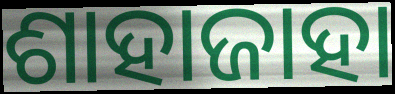
ଶାହାଜାହା